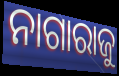
ନାଗାରାଜୁ